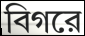
বিগরে